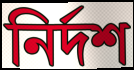
নির্দশ